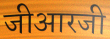
जीआरजी